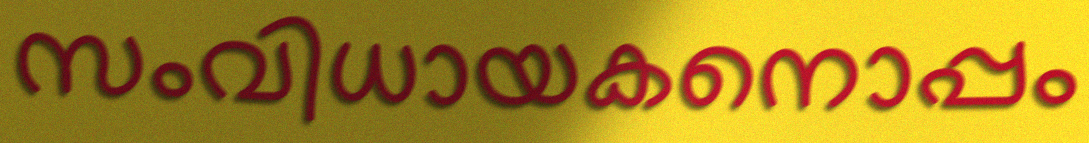
സംവിധായകനൊപ്പം